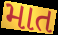
માત